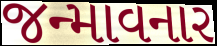
જન્માવનાર